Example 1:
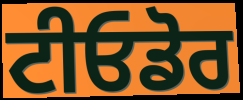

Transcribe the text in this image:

ਟੀਓਡੋਰ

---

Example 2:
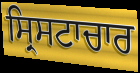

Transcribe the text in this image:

ਸ੍ਰਿਸਟਾਚਾਰ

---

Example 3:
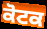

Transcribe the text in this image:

ਕੋਟਕ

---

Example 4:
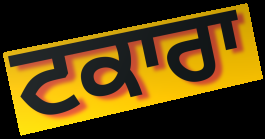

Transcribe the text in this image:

ਟਕਾਰਾ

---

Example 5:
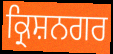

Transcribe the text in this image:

ਕ੍ਰਿਸ਼ਨਗਰ